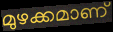
മുഴക്കമാണ്